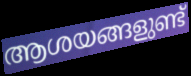
ആശയങ്ങളുണ്ട്